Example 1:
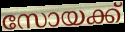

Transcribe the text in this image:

സോയക്ക്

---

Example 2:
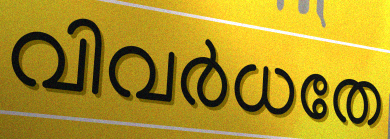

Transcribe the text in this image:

വിവർധതേ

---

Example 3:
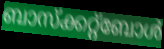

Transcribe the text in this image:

ബാസ്ക്കറ്റ്ബോൾ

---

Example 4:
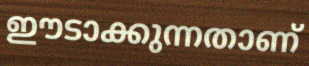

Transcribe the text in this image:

ഈടാക്കുന്നതാണ്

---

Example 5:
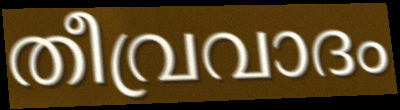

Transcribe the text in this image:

തീവ്രവാദം